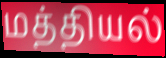
மத்தியல்